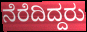
ನೆರೆದಿದ್ದರು